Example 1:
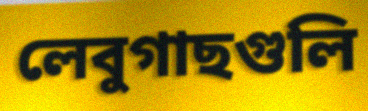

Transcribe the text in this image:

লেবুগাছগুলি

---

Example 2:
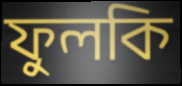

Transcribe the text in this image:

ফুলকি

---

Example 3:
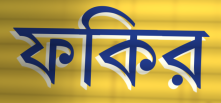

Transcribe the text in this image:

ফকির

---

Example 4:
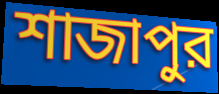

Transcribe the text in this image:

শাজাপুর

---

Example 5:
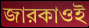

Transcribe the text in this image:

জারকাওই